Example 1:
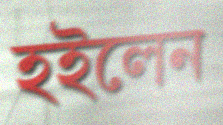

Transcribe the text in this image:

হইলেন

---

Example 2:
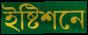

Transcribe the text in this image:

ইষ্টিশনে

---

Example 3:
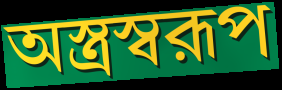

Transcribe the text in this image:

অস্ত্রস্বরূপ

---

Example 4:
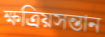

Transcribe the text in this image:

ক্ষত্রিয়সন্তান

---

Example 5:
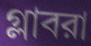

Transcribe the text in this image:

গ্লাবরা